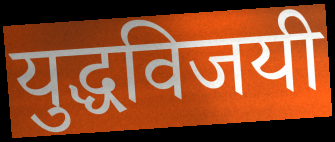
युद्धविजयी